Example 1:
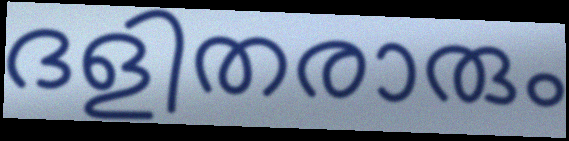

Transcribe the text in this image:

ദളിതരാരും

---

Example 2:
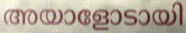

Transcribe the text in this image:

അയാളോടായി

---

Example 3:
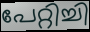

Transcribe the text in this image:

പേറ്റിച്ചി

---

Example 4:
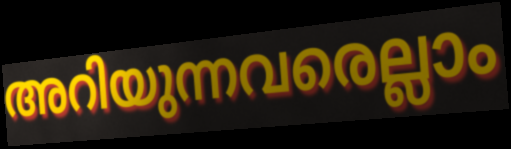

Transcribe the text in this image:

അറിയുന്നവരെല്ലാം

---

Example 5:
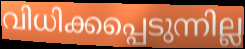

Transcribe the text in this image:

വിധിക്കപ്പെടുന്നില്ല